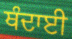
ਥੰਦਾਈ